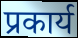
प्रकार्य